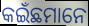
କଇଁଛମାନେ